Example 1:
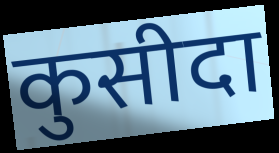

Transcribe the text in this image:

कुसीदा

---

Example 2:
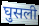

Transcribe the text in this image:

घुसली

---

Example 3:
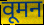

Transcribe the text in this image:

वूमन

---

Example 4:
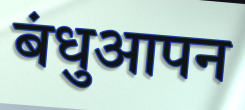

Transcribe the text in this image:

बंधुआपन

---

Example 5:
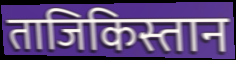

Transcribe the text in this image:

ताजिकिस्तान